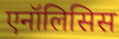
एनॉलिसिस